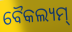
ବୈକଲ୍ୟମ୍